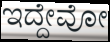
ಇದ್ದೇವೋ